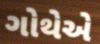
ગોથેએ